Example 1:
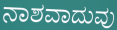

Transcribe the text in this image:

ನಾಶವಾದುವು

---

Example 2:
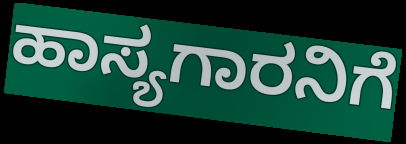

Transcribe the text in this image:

ಹಾಸ್ಯಗಾರನಿಗೆ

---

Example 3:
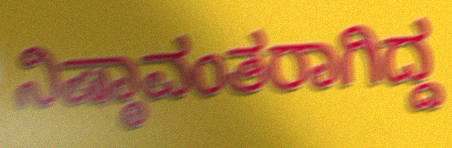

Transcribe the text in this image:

ನಿಷ್ಠಾವಂತರಾಗಿದ್ದ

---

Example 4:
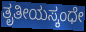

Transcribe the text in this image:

ತೃತೀಯಸ್ಕಂಧೇ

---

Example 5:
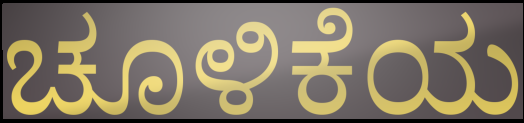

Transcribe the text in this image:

ಚೂಳಿಕೆಯ